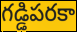
గడ్డిపరకా